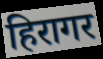
हिरागर